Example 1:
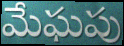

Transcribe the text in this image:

మేఘపు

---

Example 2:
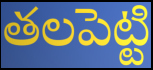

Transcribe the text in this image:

తలపెట్టి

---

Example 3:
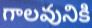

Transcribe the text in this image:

గాలవునికి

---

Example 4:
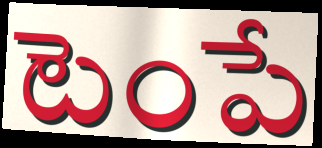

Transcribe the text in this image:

టెంపే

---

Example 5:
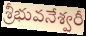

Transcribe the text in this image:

శ్రీభువనేశ్వరీ